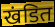
खंडित